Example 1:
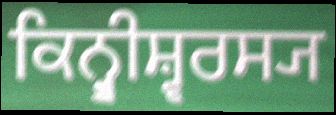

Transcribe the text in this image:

ਕਿਨ੍ਤ੍ਵੀਸ਼੍ਵਰਸ੍ਯ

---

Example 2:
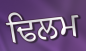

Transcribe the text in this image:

ਢਿਲਮ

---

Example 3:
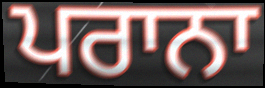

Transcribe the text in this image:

ਪਰਾਨਾ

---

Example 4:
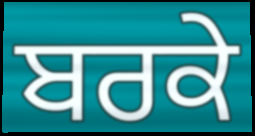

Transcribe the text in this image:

ਬਰਕੇ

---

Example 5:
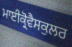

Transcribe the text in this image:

ਮਾਈਕ੍ਰੋਵੈਸਕੁਲਰ